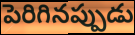
పెరిగినప్పుడు